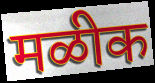
मळीक